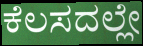
ಕೆಲಸದಲ್ಲೇ